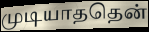
முடியாததென்